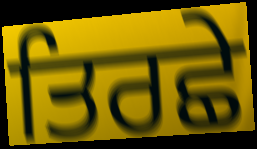
ਤਿਰਛੇ